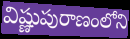
విష్ణుపురాణంలోని